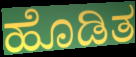
ಹೊಡಿತ